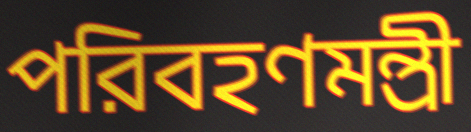
পরিবহণমন্ত্রী